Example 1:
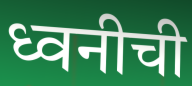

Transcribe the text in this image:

ध्वनीची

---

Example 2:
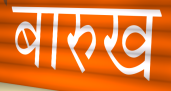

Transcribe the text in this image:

बारुख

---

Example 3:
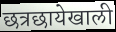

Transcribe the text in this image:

छत्रछायेखाली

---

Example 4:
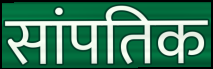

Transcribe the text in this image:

सांपतिक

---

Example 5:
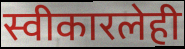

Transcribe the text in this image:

स्वीकारलेही